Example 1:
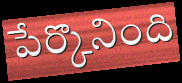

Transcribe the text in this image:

పేర్కొనింది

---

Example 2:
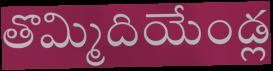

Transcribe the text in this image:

తొమ్మిదియేండ్ల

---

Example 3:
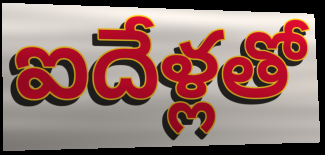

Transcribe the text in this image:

ఐదేళ్లతో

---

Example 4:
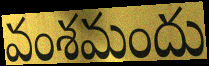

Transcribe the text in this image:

వంశమందు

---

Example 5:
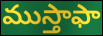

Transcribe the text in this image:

ముస్తాఫా